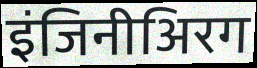
इंजिनीअिरग